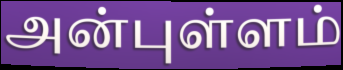
அன்புள்ளம்